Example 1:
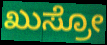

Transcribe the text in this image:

ಖುಸ್ರೋ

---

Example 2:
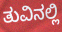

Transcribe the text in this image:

ತುವಿನಲ್ಲಿ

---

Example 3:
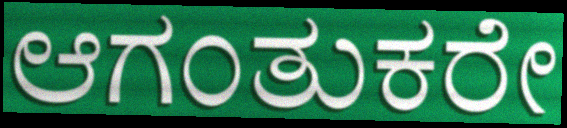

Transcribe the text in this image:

ಆಗಂತುಕರೇ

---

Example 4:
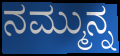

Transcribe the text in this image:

ನಮ್ಮುನ್ನ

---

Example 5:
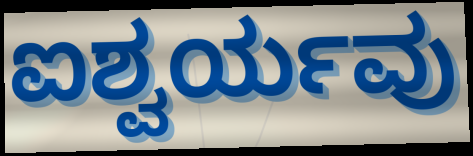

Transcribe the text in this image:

ಐಶ್ವರ್ಯವು